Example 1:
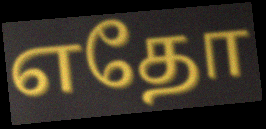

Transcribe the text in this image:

எதோ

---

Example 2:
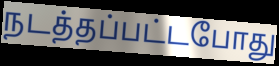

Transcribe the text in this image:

நடத்தப்பட்டபோது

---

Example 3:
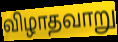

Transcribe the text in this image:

விழாதவாறு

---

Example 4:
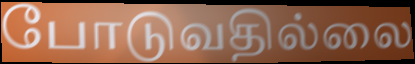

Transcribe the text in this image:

போடுவதில்லை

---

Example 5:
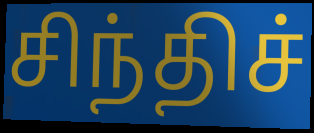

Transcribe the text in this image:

சிந்திச்